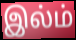
இல்ம்